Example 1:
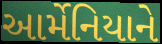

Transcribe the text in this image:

આર્મેનિયાને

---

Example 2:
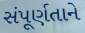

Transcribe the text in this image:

સંપૂર્ણતાને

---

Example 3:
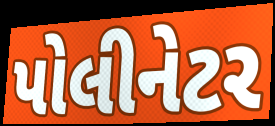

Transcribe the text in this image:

પોલીનેટર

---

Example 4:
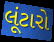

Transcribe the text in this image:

લૂંટારો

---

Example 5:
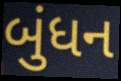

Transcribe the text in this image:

બુંધન